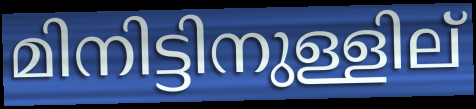
മിനിട്ടിനുള്ളില്